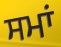
ਸਮਾਂ